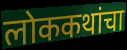
लोककथांचा